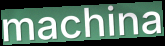
machina